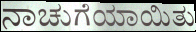
ನಾಚುಗೆಯಾಯಿತು